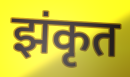
झंकृत